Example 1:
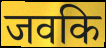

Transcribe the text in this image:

जवकि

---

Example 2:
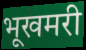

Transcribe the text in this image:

भूखमरी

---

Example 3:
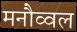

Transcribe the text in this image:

मनौव्वल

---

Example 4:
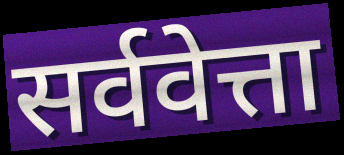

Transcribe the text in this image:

सर्ववेत्ता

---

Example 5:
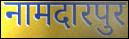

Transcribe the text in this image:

नामदारपुर